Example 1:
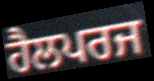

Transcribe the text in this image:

ਹੈਲਪਰਜ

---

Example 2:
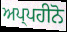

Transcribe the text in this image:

ਅਪ੍ਪਹੀਨੋ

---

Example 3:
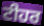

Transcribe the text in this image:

ਟੀਹਰ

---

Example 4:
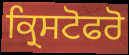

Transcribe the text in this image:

ਕ੍ਰਿਸਟੋਫਰੋ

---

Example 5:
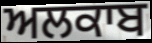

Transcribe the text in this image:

ਅਲਕਾਬ